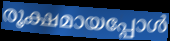
രൂക്ഷമായപ്പോൾ